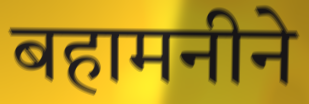
बहामनीने